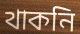
থাকনি